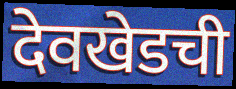
देवखेडची